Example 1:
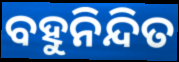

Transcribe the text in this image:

ବହୁନିନ୍ଦିତ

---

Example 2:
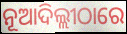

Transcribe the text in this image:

ନୂଆଦିଲ୍ଲୀଠାରେ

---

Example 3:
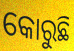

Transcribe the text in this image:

କୋରୁଛି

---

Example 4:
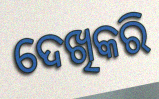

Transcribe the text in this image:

ଦେଖିକରି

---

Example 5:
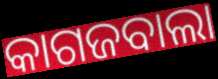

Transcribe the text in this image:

କାଗଜବାଲା